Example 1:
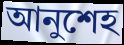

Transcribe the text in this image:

আনুশেহ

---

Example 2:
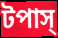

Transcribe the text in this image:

টপাস্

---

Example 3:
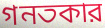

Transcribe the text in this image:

গনতকার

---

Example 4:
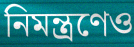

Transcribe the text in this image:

নিমন্ত্রণেও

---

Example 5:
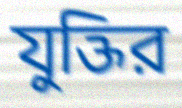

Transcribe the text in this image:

যুক্তির